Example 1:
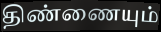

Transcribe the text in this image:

திண்ணையும்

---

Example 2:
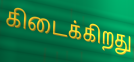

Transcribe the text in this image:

கிடைக்கிறது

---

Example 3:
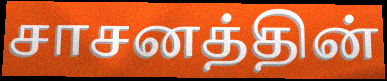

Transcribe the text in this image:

சாசனத்தின்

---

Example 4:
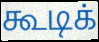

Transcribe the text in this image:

கூடிக்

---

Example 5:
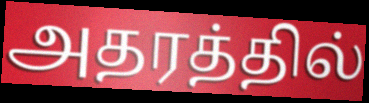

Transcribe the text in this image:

அதரத்தில்